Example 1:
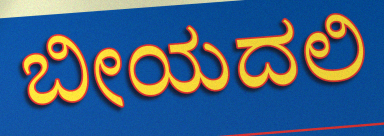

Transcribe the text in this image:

ಬೀಯದಲಿ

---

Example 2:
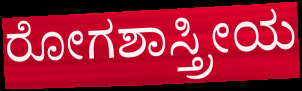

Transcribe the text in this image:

ರೋಗಶಾಸ್ತ್ರೀಯ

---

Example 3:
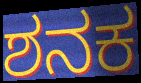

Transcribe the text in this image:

ಶನಕ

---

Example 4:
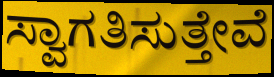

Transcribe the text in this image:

ಸ್ವಾಗತಿಸುತ್ತೇವೆ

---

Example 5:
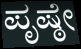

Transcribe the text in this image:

ಪೃಷ್ಠೇ